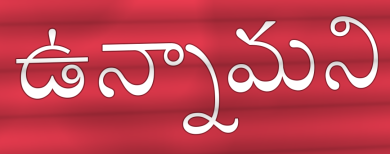
ఉన్నామని